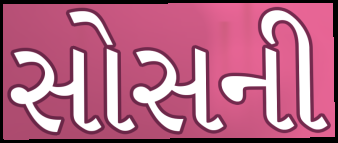
સોસની